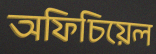
অফিচিয়েল